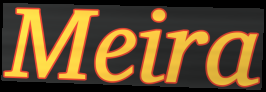
Meira